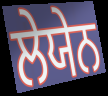
ਲੇਯੇਨ